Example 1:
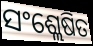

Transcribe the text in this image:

ସଂଶ୍ଲେଷିତ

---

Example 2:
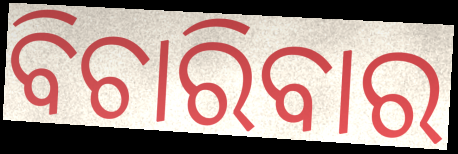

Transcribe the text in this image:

ବିଚାରିବାର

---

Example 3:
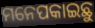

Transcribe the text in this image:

ମନେପକାଇଛୁ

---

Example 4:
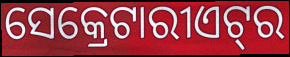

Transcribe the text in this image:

ସେକ୍ରେଟାରୀଏଟ୍‍ର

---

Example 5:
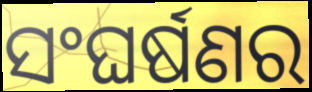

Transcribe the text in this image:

ସଂଘର୍ଷଣର